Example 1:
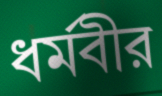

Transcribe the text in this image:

ধর্মবীর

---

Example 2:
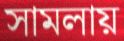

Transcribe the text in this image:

সামলায়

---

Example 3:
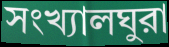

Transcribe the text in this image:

সংখ্যালঘুরা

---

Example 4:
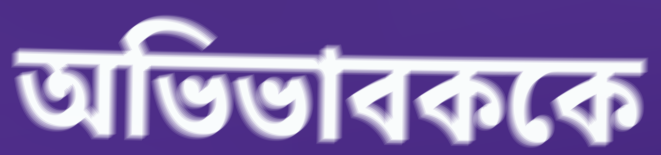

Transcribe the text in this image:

অভিভাবককে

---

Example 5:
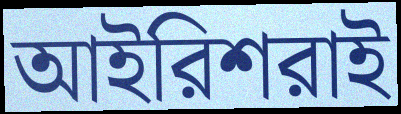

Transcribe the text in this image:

আইরিশরাই